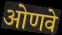
ओणवे